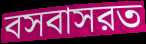
বসবাসরত